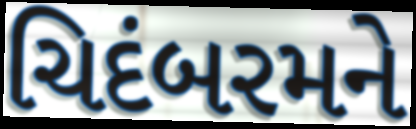
ચિદંબરમને